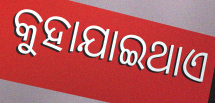
କୁହାଯାଇଥାଏ